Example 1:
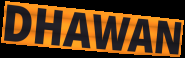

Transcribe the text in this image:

DHAWAN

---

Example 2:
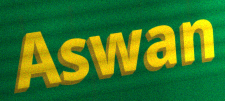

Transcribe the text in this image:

Aswan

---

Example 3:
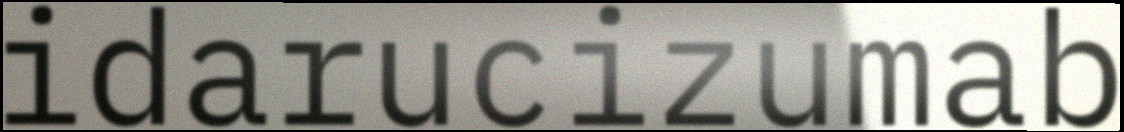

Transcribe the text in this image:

idarucizumab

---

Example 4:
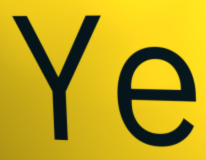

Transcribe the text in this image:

Ye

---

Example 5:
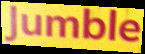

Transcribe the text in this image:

Jumble